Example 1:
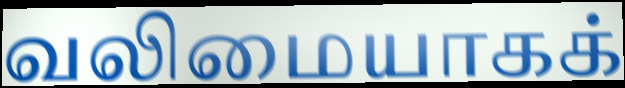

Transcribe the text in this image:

வலிமையாகக்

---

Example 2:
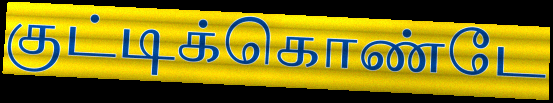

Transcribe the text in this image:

குட்டிக்கொண்டே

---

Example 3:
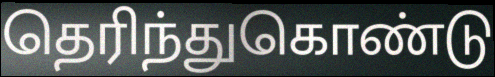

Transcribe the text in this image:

தெரிந்துகொண்டு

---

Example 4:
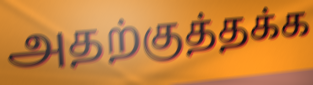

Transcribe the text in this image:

அதற்குத்தக்க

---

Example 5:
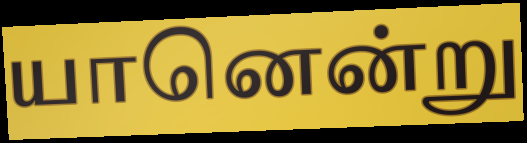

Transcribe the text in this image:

யானென்று